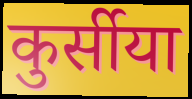
कुर्सीया